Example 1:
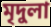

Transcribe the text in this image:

মৃদুলা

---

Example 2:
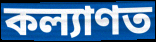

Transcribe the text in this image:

কল্যাণত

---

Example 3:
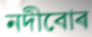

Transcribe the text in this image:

নদীবোৰ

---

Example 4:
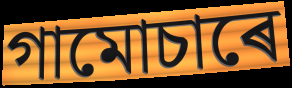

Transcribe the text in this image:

গামোচাৰে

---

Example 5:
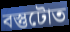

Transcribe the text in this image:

বস্তুটোত